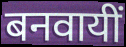
बनवायीं